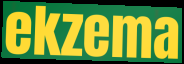
ekzema